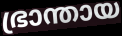
ഭ്രാന്തായ